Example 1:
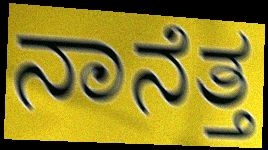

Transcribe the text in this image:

ನಾನೆತ್ತ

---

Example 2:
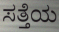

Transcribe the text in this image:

ಸತ್ತೆಯ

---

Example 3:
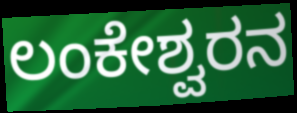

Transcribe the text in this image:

ಲಂಕೇಶ್ವರನ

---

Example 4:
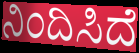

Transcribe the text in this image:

ನಿಂದಿಸಿದೆ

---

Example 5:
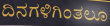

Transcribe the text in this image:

ದಿನಗಳಿಗಿಂತಲೂ